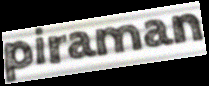
piraman